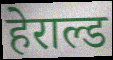
हेराल्ड